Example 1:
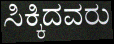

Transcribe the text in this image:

ಸಿಕ್ಕಿದವರು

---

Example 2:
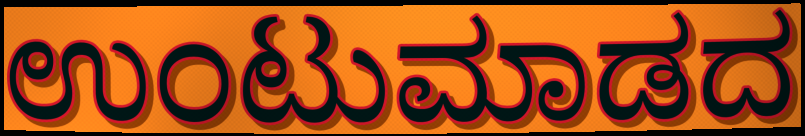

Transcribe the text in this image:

ಉಂಟುಮಾಡದ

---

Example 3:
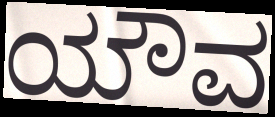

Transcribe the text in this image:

ಯೌವ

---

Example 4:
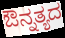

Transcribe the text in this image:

ಔನ್ನತ್ಯದ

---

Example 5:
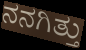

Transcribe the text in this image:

ನನಗಿತ್ತು